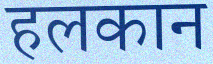
हलकान